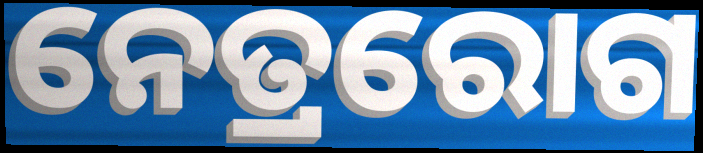
ନେତ୍ରରୋଗ